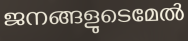
ജനങ്ങളുടെമേൽ